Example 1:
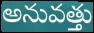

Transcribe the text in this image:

అనువత్తు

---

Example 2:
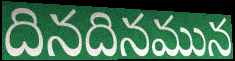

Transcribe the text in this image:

దినదినమున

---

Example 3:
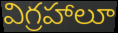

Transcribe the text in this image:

విగ్రహాలూ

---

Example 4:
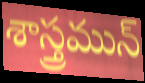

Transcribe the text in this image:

శాస్త్రమున్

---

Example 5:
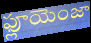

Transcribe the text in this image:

ఫ్లూయెంజా